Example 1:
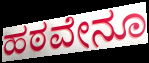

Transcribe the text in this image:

ಹಠವೇನೂ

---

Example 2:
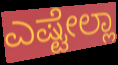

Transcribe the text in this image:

ಎಷ್ಟೇಲ್ಲಾ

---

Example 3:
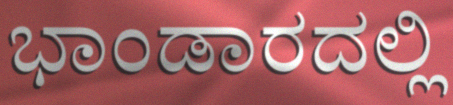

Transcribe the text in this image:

ಭಾಂಡಾರದಲ್ಲಿ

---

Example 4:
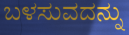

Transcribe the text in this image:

ಬಳಸುವದನ್ನು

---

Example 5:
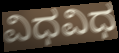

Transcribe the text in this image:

ವಿಧವಿಧ